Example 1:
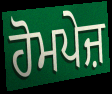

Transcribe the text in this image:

ਹੋਮਪੇਜ਼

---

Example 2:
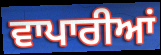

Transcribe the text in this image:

ਵਾਪਾਰੀਆਂ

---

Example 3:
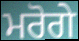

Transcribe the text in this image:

ਮਰੋਗੇ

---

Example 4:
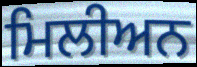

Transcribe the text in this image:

ਮਿਲੀਅਨ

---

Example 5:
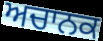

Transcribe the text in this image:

ਅਚਾਨਕ